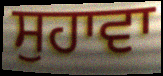
ਸੁਹਾਵਾ